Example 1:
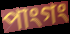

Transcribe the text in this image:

পাংগং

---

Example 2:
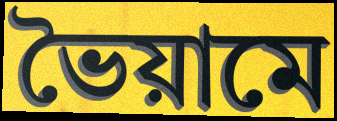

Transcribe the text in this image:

ভৈয়ামে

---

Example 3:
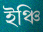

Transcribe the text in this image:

ইঞ্চি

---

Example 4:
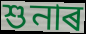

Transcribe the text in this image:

শুনাৰ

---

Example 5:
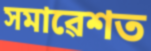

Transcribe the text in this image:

সমাৱেশত